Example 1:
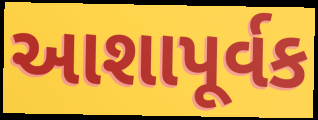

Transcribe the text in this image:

આશાપૂર્વક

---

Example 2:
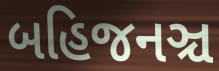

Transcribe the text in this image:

બહિજનઞ્ચ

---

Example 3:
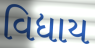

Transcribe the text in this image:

વિદ્યાય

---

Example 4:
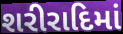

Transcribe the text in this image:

શરીરાદિમાં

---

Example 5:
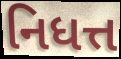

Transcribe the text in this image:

નિધત્ત